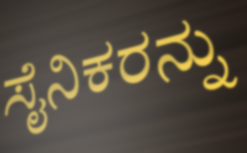
ಸೈನಿಕರನ್ನು